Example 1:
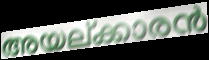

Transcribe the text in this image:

അയല്ക്കാരൻ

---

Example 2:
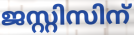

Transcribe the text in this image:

ജസ്റ്റിസിന്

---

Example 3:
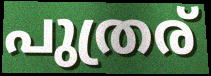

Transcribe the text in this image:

പുത്രര്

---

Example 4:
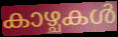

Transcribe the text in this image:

കാഴ്ചകൾ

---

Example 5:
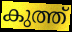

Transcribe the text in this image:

കുത്ത്